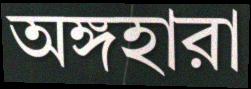
অঙ্গহারা